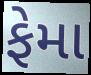
ફેમા